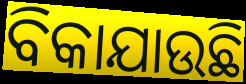
ବିକାଯାଉଛି